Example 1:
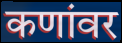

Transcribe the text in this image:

कणांवर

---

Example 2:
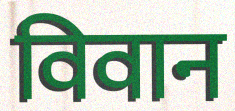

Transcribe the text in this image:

विवान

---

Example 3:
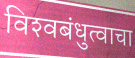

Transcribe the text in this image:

विश्वबंधुत्वाचा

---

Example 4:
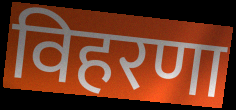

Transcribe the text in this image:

विहरणा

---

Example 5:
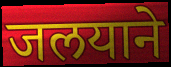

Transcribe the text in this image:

जलयाने